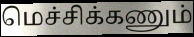
மெச்சிக்கணும்